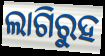
ଲାଗିରୁହ